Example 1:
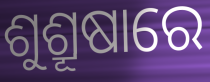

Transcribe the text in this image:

ଶୁଶ୍ରୂଷାରେ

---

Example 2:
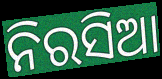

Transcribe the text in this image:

ନିରସିଆ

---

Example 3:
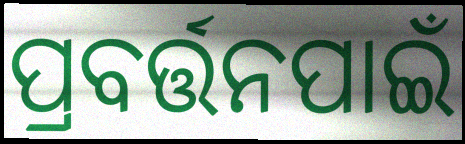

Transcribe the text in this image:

ପ୍ରବର୍ତ୍ତନପାଇଁ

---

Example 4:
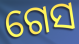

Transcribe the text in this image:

ଗେସ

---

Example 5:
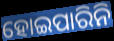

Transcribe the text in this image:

ହୋଇପାରିନି